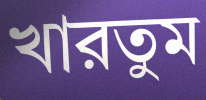
খারতুম